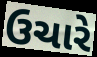
ઉચારે